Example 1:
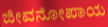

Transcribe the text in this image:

ಜೀವನೋಪಾಯ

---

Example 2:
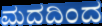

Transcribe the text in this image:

ಮದದಿಂದ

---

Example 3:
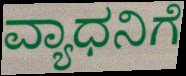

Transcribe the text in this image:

ವ್ಯಾಧನಿಗೆ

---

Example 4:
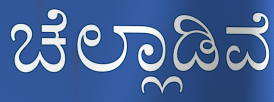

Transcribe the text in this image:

ಚೆಲ್ಲಾಡಿವೆ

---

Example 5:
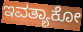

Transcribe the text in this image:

ಇವತ್ಯಾಕೋ